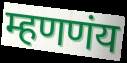
म्हणणंय